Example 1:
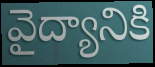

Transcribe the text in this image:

వైద్యానికి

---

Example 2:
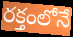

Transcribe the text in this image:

రక్తంలోనే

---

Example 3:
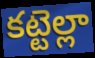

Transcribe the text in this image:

కట్టెల్లా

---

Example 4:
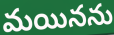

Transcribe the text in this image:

మయినను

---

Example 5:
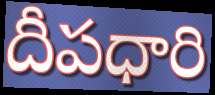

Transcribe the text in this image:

దీపధారి